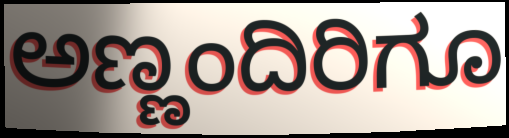
ಅಣ್ಣಂದಿರಿಗೂ